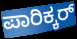
ಪಾರಿಕ್ಕರ್